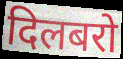
दिलबरो